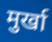
मुर्खा